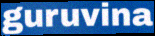
guruvina